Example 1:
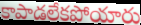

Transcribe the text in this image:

కాపాడలేకపోయారు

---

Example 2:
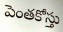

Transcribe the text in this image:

పెంతకోస్తు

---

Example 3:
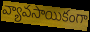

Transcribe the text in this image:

వ్యావసాయికంగా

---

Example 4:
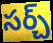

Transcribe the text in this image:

సర్చ్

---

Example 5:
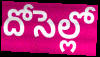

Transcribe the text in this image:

దోసెల్లో